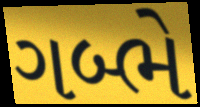
ગબ્ભે